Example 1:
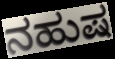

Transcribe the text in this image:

ನಹುಷ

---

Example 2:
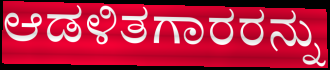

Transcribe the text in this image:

ಆಡಳಿತಗಾರರನ್ನು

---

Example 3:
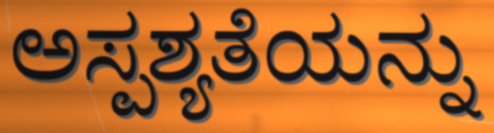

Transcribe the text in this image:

ಅಸ್ಪಶ್ಯತೆಯನ್ನು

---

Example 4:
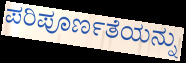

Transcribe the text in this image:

ಪರಿಪೂರ್ಣತೆಯನ್ನು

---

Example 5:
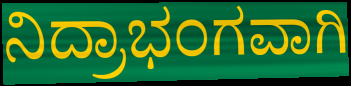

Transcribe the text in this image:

ನಿದ್ರಾಭಂಗವಾಗಿ